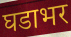
घडाभर